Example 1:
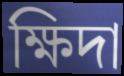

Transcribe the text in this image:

ক্ষিদা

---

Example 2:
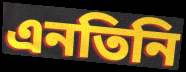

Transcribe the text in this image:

এনতিনি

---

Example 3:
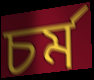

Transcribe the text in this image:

চর্ম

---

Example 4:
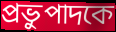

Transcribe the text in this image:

প্রভুপাদকে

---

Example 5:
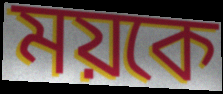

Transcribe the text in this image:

ময়কে